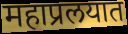
महाप्रलयात